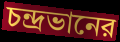
চন্দ্রভানের